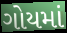
ગોયમાં